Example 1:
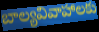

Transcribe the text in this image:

బాల్యవివాహాలకు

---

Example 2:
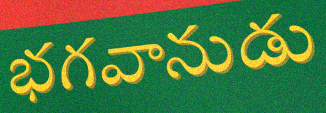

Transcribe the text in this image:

భగవానుడు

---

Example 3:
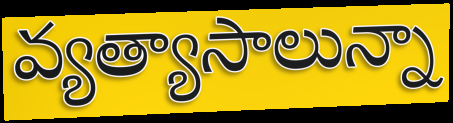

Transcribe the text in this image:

వ్యత్యాసాలున్నా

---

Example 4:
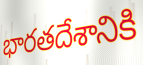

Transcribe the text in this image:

భారతదేశానికి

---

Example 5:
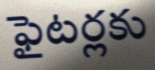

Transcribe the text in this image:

ఫైటర్లకు